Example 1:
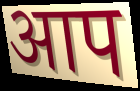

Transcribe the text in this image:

आप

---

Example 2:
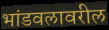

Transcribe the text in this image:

भांडवलावरील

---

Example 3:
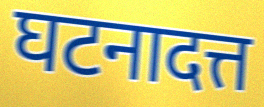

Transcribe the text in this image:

घटनादत्त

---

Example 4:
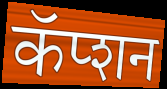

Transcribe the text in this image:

कॅप्शन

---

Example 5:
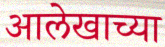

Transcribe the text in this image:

आलेखाच्या